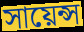
সায়েন্স